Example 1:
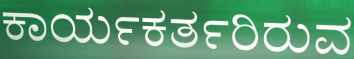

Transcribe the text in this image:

ಕಾರ್ಯಕರ್ತರಿರುವ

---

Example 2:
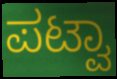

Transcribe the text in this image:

ಪಟ್ವಾ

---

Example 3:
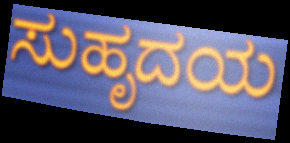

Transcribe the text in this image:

ಸುಹೃದಯ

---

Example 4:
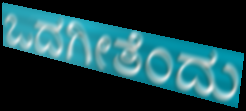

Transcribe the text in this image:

ಒದಗೀತೆಂದು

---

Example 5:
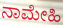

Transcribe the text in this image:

ನಾಮೇಹಿ